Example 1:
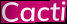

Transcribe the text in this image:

Cacti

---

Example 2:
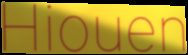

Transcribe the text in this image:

Hiouen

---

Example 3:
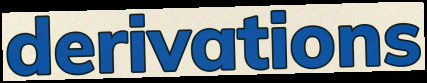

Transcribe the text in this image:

derivations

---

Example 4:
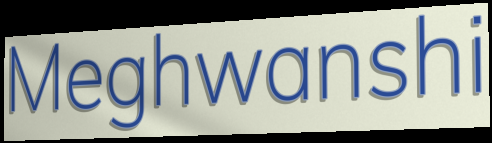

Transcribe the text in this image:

Meghwanshi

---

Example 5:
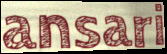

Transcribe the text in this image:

ansari